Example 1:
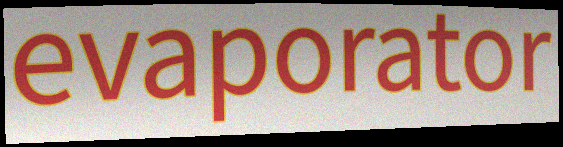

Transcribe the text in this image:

evaporator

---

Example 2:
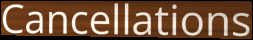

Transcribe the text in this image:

Cancellations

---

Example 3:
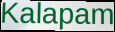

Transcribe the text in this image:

Kalapam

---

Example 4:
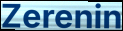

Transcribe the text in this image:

Zerenin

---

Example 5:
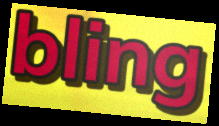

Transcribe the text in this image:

bling